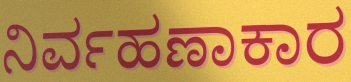
ನಿರ್ವಹಣಾಕಾರ